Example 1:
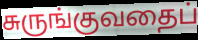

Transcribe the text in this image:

சுருங்குவதைப்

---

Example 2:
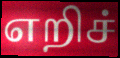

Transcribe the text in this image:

எறிச்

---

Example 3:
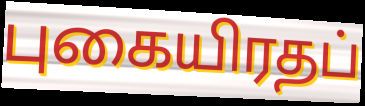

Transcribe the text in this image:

புகையிரதப்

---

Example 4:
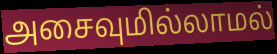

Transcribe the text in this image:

அசைவுமில்லாமல்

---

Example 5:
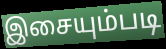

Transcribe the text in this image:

இசையும்படி